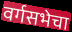
वर्गसभेचा